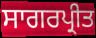
ਸਾਗਰਪ੍ਰੀਤ